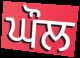
ਘੌਲ